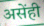
असेंही